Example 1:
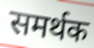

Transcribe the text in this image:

समर्थक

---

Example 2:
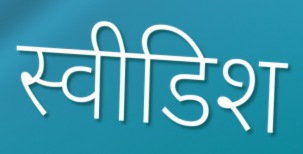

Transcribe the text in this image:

स्वीडिश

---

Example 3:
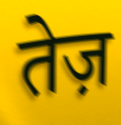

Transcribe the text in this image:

तेज़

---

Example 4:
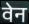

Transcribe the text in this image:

वेन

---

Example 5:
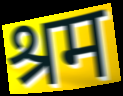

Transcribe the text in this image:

श्रम